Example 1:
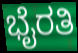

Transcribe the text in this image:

ಭೈರತಿ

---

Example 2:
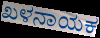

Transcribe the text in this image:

ಖಳನಾಯಕ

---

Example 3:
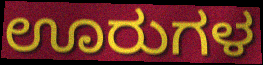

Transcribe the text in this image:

ಊರುಗಳ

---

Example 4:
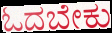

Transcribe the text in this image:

ಓದಬೇಕು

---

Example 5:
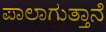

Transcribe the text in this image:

ಪಾಲಾಗುತ್ತಾನೆ